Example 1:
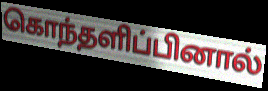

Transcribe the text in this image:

கொந்தளிப்பினால்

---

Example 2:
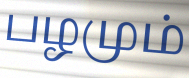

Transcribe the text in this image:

பழமும்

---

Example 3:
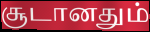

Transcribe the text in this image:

சூடானதும்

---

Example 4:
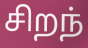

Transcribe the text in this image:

சிறந்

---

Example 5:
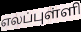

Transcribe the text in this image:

எலப்புள்ளி